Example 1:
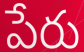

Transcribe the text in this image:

పేరు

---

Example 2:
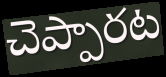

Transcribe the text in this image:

చెప్పారట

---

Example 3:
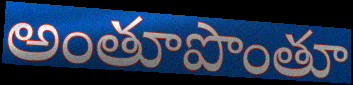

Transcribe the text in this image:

అంతూపొంతూ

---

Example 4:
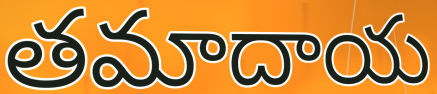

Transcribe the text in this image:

తమాదాయ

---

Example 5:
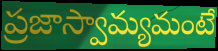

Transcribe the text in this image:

ప్రజాస్వామ్యమంటే